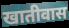
खातीवास